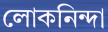
লোকনিন্দা